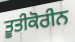
ਤੂਤੀਕੋਰੀਨ